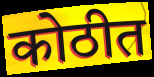
कोठीत